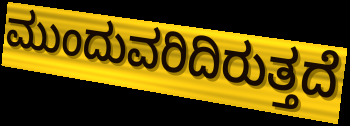
ಮುಂದುವರಿದಿರುತ್ತದೆ